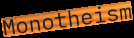
Monotheism